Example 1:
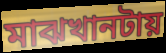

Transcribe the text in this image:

মাঝখানটায়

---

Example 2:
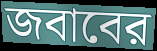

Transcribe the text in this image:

জবাবের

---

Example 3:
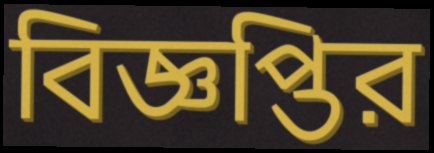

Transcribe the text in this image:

বিজ্ঞপ্তির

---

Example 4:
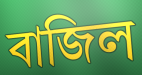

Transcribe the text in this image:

বাজিল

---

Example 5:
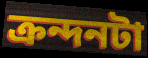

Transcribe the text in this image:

ক্রন্দনটা